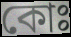
কোঃ